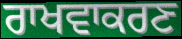
ਰਾਖਵਾਕਰਣ